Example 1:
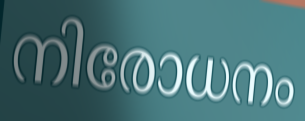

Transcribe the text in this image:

നിരോധനം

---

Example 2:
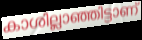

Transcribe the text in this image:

കാശില്ലാഞ്ഞിട്ടാണ്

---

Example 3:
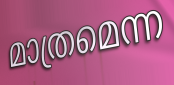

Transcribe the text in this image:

മാത്രമെന്ന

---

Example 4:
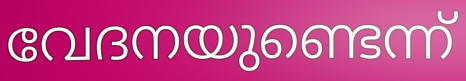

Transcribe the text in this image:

വേദനയുണ്ടെന്ന്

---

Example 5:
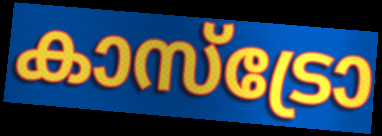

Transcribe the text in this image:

കാസ്ട്രോ